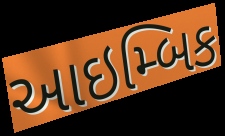
આઇમ્બિક